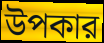
উপকার